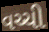
વચ્ચી